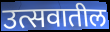
उत्सवातील